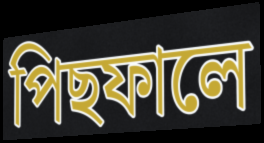
পিছফালে